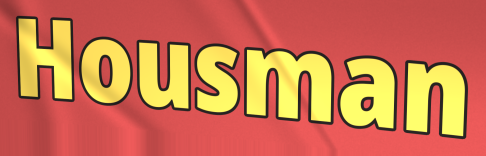
Housman